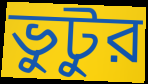
ভুটুর